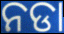
ନଡା